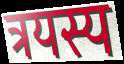
त्रयस्य